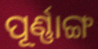
ପୂର୍ଣ୍ଣାଙ୍ଗ